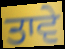
ਤਾਵੇ